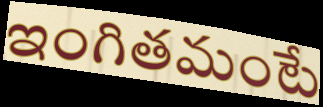
ఇంగితమంటే